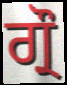
ਗ੍ਰੌ